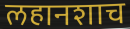
लहानशाच